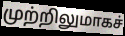
முற்றிலுமாகச்